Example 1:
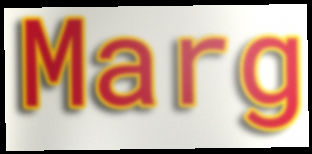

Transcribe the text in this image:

Marg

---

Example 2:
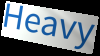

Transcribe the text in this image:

Heavy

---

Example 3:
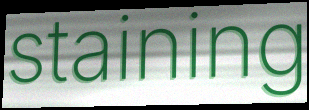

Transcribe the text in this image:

staining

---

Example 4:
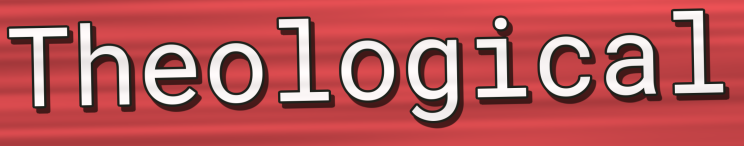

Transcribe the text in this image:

Theological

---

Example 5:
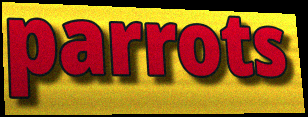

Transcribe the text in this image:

parrots